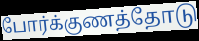
போர்க்குணத்தோடு